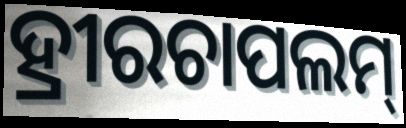
ହ୍ରୀରଚାପଲମ୍